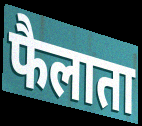
फैलाता